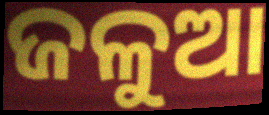
ଜଳୁଆ